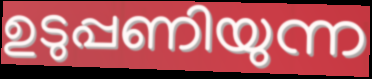
ഉടുപ്പണിയുന്ന